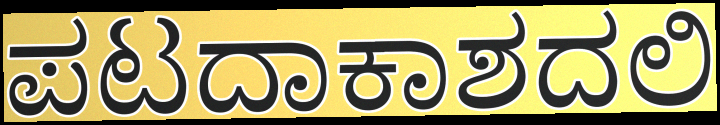
ಪಟದಾಕಾಶದಲಿ